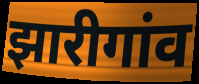
झारीगांव